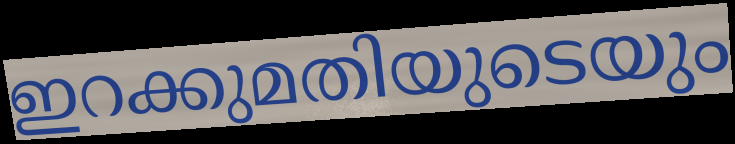
ഇറക്കുമതിയുടെയും